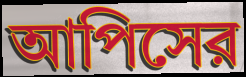
আপিসের